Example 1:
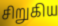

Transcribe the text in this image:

சிறுகிய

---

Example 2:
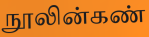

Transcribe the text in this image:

நூலின்கண்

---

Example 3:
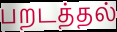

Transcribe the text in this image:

பறடத்தல்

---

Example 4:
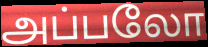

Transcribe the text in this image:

அப்பலோ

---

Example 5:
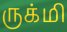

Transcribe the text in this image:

ருக்மி